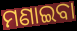
ମଣାଇବା